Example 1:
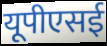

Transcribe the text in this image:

यूपीएसई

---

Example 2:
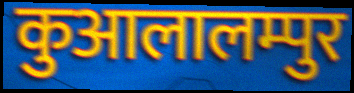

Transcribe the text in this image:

कुआलालम्पुर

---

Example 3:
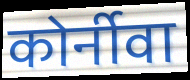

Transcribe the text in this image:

कोर्नीवा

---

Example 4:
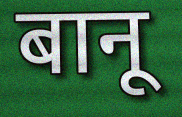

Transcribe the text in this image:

बानू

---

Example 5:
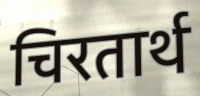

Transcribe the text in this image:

चिरतार्थ